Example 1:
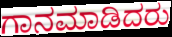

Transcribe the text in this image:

ಗಾನಮಾಡಿದರು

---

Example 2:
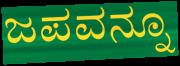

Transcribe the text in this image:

ಜಪವನ್ನೂ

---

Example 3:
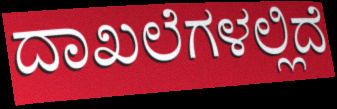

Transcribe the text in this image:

ದಾಖಲೆಗಳಲ್ಲಿದೆ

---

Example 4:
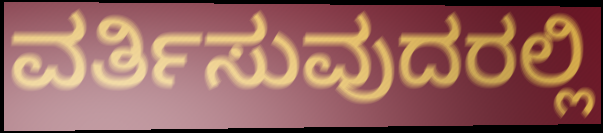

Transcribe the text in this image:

ವರ್ತಿಸುವುದರಲ್ಲಿ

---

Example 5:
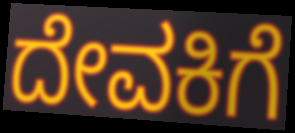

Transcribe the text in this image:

ದೇವಕಿಗೆ